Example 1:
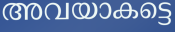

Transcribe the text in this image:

അവയാകട്ടെ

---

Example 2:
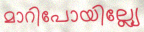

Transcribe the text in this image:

മാറിപോയില്ല്യേ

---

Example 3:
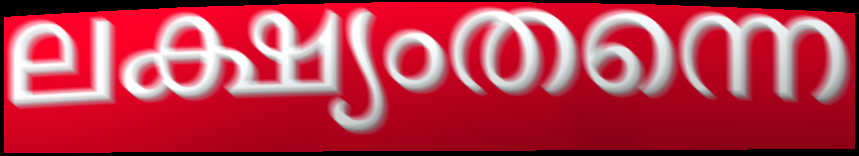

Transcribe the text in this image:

ലക്ഷ്യംതന്നെ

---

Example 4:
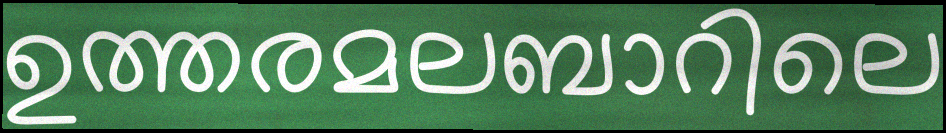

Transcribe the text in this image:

ഉത്തരമലബാറിലെ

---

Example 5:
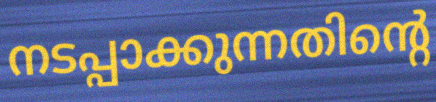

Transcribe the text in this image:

നടപ്പാക്കുന്നതിന്റെ